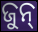
ଜୁନ୍